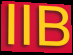
IIB